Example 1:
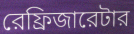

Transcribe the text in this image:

রেফ্রিজারেটার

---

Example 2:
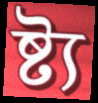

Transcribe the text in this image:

ষ্ট্য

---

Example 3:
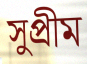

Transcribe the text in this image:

সুপ্রীম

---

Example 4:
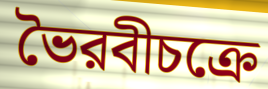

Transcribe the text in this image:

ভৈরবীচক্রে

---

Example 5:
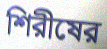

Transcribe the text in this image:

শিরীষের